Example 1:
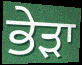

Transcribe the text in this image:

ਭੇੜਾ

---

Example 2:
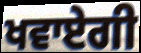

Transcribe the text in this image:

ਖਵਾਏਗੀ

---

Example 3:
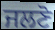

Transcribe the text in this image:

ਜਲਣੋ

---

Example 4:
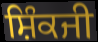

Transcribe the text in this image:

ਸ਼ਿੰਕਜੀ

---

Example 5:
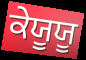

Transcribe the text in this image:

ਕੇਯੂਯੂ